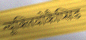
न्यूक्लियोकैप्सिड